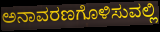
ಅನಾವರಣಗೊಳಿಸುವಲ್ಲಿ